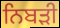
ਨਿਬੜੀ